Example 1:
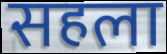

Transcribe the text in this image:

सहला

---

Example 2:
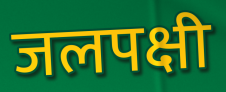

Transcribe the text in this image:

जलपक्षी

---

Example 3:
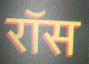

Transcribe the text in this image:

रॉस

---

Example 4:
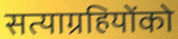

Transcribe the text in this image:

सत्याग्रहियोंको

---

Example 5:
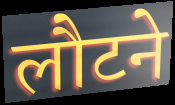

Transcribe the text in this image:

लौटने